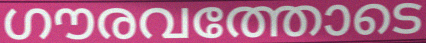
ഗൗരവത്തോടെ